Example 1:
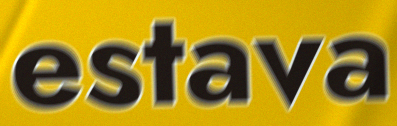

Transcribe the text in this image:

estava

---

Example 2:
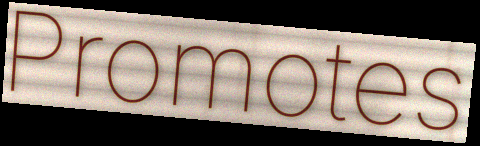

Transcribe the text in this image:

Promotes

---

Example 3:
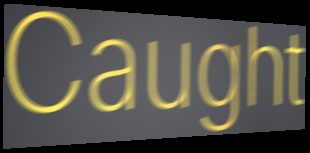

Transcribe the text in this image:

Caught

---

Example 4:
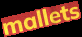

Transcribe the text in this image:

mallets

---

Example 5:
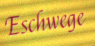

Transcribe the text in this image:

Eschwege